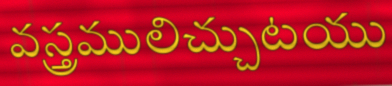
వస్త్రములిచ్చుటయు